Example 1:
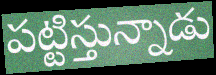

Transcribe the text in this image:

పట్టిస్తున్నాడు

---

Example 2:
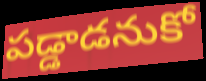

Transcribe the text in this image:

పడ్డాడనుకో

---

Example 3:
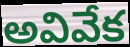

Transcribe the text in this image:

అవివేక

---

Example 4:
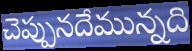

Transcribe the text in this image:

చెప్పునదేమున్నది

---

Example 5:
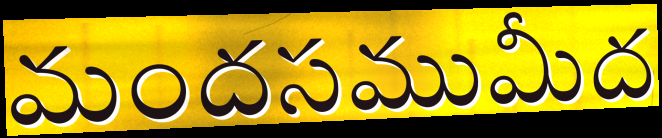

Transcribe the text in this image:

మందసముమీద